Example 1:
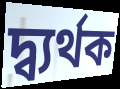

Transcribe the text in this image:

দ্ব্যর্থক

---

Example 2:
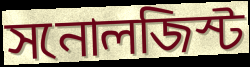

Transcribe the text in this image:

সনোলজিস্ট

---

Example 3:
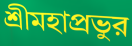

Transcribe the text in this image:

শ্রীমহাপ্রভুর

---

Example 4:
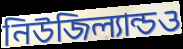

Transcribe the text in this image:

নিউজিল্যান্ডও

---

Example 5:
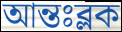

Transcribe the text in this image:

আন্তঃব্লক